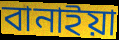
বানাইয়া